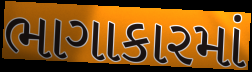
ભાગાકારમાં